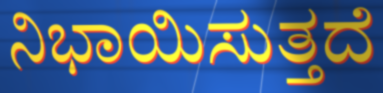
ನಿಭಾಯಿಸುತ್ತದೆ